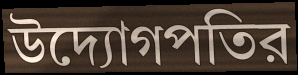
উদ্যোগপতির